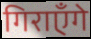
गिराएँगे